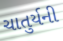
ચાતુર્યની